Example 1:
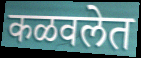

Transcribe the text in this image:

कळवलेत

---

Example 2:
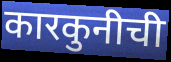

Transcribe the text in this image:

कारकुनीची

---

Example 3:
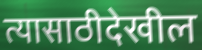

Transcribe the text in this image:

त्यासाठीदेखील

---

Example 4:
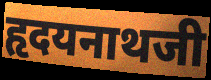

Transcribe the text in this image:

हृदयनाथजी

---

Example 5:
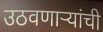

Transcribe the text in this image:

उठवणाऱ्यांची